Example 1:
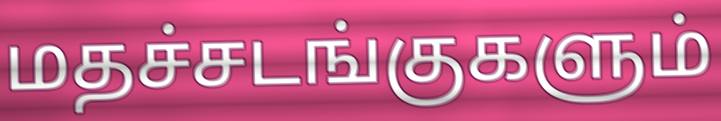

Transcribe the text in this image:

மதச்சடங்குகளும்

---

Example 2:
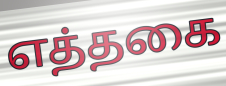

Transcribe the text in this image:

எத்தகை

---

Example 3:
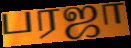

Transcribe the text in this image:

பரஜா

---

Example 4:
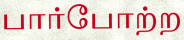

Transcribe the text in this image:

பார்போற்ற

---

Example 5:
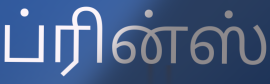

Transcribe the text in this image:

ப்ரின்ஸ்